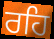
ਰਹਿ